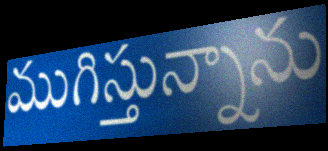
ముగిస్తున్నాను